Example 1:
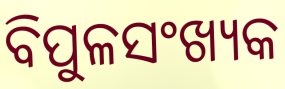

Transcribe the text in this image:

ବିପୁଳସଂଖ୍ୟକ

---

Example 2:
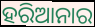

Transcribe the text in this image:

ହରିଆନାର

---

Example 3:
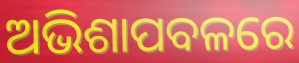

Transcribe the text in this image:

ଅଭିଶାପବଳରେ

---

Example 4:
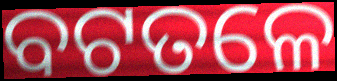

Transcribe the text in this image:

ବଟତଳେ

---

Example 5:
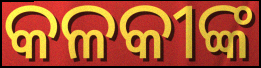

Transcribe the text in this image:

କଳକୀଙ୍କ